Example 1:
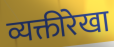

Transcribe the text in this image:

व्यक्तीरेखा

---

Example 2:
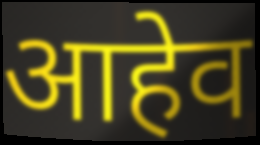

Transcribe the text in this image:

आहेव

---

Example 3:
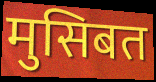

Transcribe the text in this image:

मुसिबत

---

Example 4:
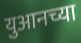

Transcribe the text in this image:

युआनच्या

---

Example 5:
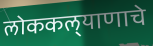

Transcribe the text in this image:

लोककल्याणाचे